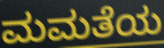
ಮಮತೆಯ